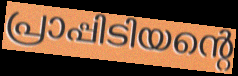
പ്രാപ്പിടിയന്റെ